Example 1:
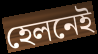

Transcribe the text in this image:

হেলনেই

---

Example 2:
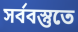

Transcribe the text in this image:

সর্ববস্তুতে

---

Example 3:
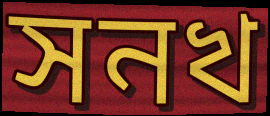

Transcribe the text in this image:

সনখ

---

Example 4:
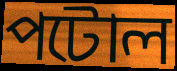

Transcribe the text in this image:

পটোল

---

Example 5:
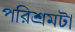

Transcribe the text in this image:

পরিশ্রমটা